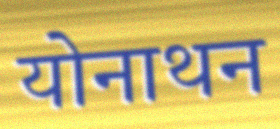
योनाथन